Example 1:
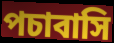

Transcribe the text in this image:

পচাবাসি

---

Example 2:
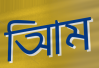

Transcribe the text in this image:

আিম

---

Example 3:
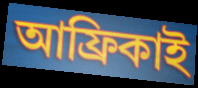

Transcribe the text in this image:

আফ্রিকাই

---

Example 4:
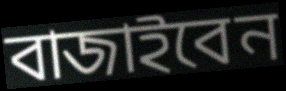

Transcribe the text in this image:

বাজাইবেন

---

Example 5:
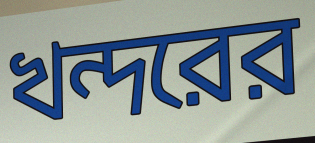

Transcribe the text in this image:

খন্দরের